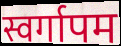
स्वर्गापम